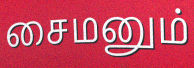
சைமனும்